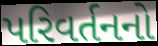
પરિવર્તનનો